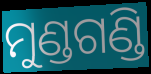
ମୁଣ୍ଡଗଣ୍ଡି